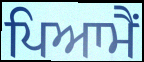
ਪਿਆਮੈਂ